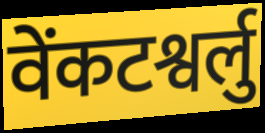
वेंकटश्वर्लु